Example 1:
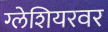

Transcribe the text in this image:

ग्लेशियरवर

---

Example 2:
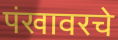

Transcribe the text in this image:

पंखावरचे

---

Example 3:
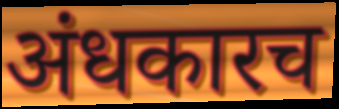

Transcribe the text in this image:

अंधकारच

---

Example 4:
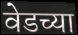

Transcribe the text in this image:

वेडच्या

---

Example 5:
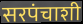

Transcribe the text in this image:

सरपंचाशी